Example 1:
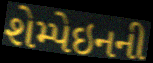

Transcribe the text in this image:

શેમ્પેઇનની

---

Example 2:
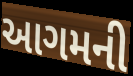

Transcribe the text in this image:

આગમની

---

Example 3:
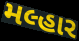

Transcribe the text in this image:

મલ્હાર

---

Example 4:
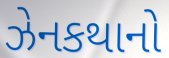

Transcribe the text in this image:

ઝેનકથાનો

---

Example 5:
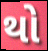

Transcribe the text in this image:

થો